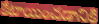
కేటాయించడానికి